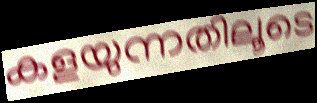
കളയുന്നതിലൂടെ